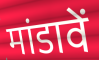
मांडावें